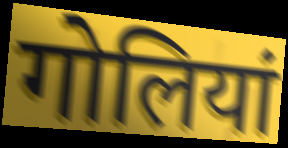
गोलियां